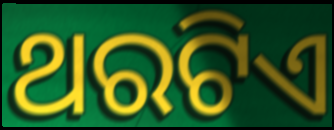
ଥରଟିଏ